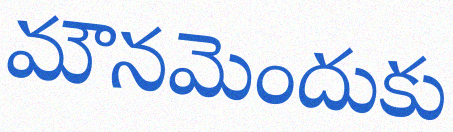
మౌనమెందుకు